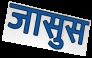
जासुस